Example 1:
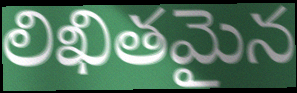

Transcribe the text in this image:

లిఖితమైన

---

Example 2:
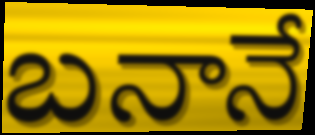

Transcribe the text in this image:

బనానే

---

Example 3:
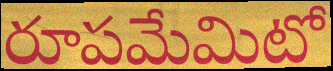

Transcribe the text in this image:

రూపమేమిటో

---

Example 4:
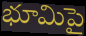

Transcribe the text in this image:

భూమిపై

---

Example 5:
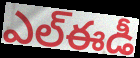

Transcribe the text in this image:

ఎల్ఈడీ